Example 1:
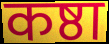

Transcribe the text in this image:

कष्ठा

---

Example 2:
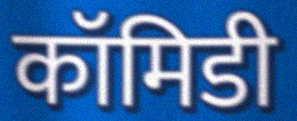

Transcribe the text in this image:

कॉमिडी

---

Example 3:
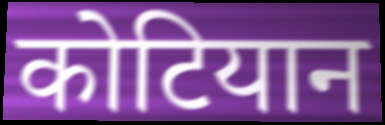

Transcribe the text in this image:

कोटियान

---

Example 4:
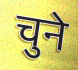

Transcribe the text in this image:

चुने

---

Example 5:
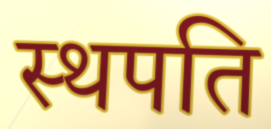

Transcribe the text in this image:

स्थपति